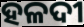
ହଳଦୀ